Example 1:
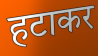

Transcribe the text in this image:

हटाकर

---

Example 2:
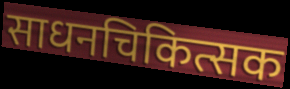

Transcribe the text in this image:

साधनचिकित्सक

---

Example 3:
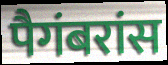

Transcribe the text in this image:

पैगंबरांस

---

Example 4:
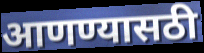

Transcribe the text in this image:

आणण्यासठी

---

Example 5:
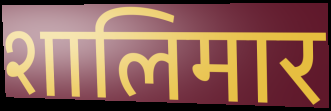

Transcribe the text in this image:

शालिमार